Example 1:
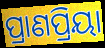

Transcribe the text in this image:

ପ୍ରାଣପ୍ରିୟା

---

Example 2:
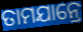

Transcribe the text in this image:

ତାମଯାନ୍ରେ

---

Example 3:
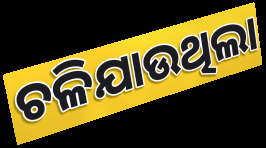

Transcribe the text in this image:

ଚଳିଯାଉଥିଲା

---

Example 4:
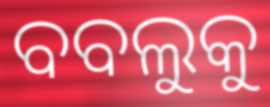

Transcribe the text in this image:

ବବଲୁକୁ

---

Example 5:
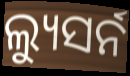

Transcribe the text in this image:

ଲ୍ୟୁସର୍ନ